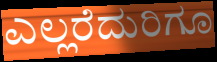
ಎಲ್ಲರೆದುರಿಗೂ